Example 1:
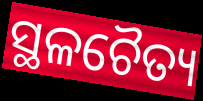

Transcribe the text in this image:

ସ୍ଥଳଚୈତ୍ୟ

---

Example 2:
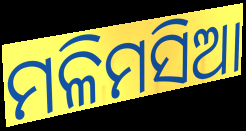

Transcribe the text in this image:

ମଳିମସିଆ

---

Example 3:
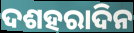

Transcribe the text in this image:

ଦଶହରାଦିନ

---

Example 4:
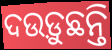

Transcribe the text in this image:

ଦଉଡ଼ୁଛନ୍ତି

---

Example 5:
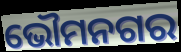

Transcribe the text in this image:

ଭୌମନଗର